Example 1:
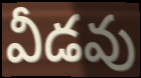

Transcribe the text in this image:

వీడవు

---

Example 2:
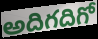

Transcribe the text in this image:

అదిగదిగో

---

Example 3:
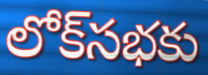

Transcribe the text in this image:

లోక్‌సభకు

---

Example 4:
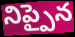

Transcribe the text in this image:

నిప్పైన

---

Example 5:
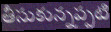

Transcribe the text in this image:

తీసుకున్నప్పటి